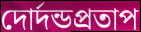
দোর্দন্ডপ্রতাপ